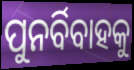
ପୁନର୍ବିବାହକୁ